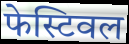
फेस्टिवल